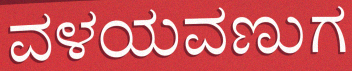
ವಳಯವಣುಗ